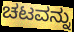
ಚಟವನ್ನು